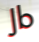
Jb